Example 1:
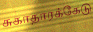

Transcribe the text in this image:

சுகாதாரக்கேடு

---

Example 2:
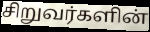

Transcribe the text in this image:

சிறுவர்களின்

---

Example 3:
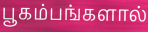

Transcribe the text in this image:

பூகம்பங்களால்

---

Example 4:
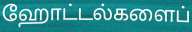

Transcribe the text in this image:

ஹோட்டல்களைப்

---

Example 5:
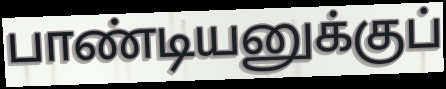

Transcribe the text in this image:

பாண்டியனுக்குப்